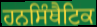
ਹਨਸਿੰਥੈਟਿਕ